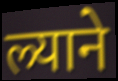
ल्याने